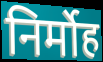
निर्मोह